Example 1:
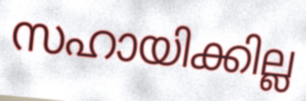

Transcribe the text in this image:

സഹായിക്കില്ല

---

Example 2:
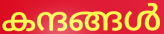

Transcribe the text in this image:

കന്ദങ്ങൾ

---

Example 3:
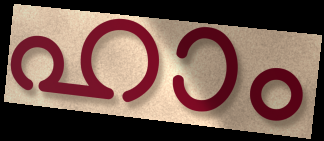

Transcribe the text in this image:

ഹാം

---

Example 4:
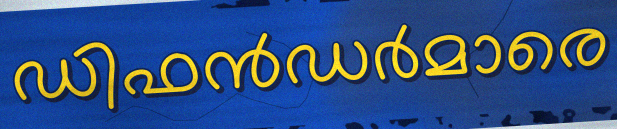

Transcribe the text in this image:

ഡിഫൻഡർമാരെ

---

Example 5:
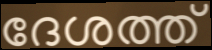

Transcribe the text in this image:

ദേശത്ത്